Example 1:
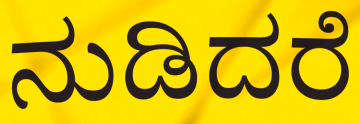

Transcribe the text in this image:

ನುಡಿದರೆ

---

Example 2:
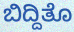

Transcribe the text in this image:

ಬಿದ್ದಿತೊ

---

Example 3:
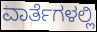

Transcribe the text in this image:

ವಾರ್ತೆಗಳಲ್ಲಿ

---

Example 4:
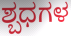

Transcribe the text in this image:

ಶ್ಬಧಗಳ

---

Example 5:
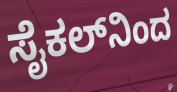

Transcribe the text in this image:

ಸೈಕಲ್‌ನಿಂದ